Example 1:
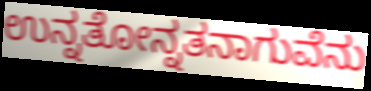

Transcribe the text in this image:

ಉನ್ನತೋನ್ನತನಾಗುವೆನು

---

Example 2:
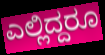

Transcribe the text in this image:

ಎಲ್ಲಿದ್ದರೂ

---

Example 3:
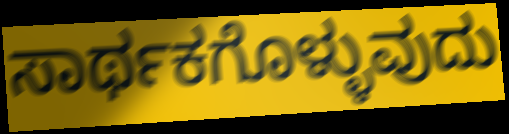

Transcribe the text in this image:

ಸಾರ್ಥಕಗೊಳ್ಳುವುದು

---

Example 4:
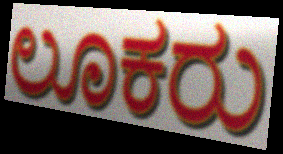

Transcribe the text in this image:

ಲೂಕರು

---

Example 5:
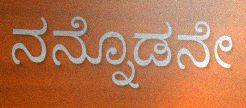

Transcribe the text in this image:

ನನ್ನೊಡನೇ